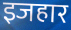
इजहार